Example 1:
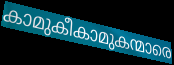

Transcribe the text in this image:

കാമുകീകാമുകന്മാരെ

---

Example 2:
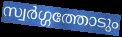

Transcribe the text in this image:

സ്വർഗ്ഗത്തോടും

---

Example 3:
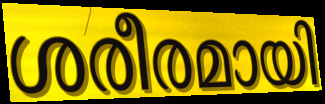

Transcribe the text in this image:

ശരീരമായി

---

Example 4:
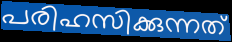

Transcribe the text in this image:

പരിഹസിക്കുന്നത്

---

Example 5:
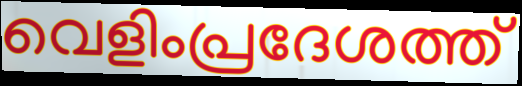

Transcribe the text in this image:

വെളിംപ്രദേശത്ത്